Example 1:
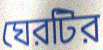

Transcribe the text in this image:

ঘেরটির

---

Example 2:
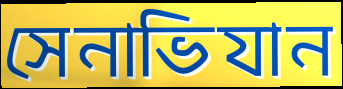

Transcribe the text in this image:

সেনাভিযান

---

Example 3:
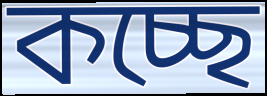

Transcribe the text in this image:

কচ্ছে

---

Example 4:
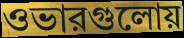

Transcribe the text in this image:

ওভারগুলোয়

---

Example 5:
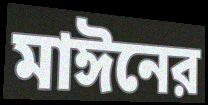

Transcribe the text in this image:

মাঈনের